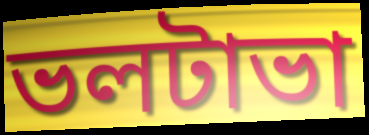
ভলটাভা